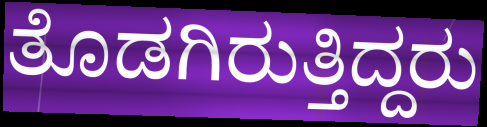
ತೊಡಗಿರುತ್ತಿದ್ದರು